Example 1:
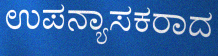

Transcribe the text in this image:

ಉಪನ್ಯಾಸಕರಾದ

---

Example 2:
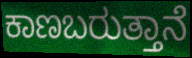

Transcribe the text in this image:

ಕಾಣಬರುತ್ತಾನೆ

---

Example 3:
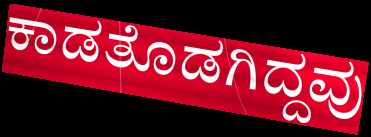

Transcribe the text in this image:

ಕಾಡತೊಡಗಿದ್ದವು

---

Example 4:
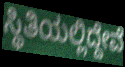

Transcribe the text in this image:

ಸ್ಥಿತಿಯಲ್ಲಿದ್ದೇವೆ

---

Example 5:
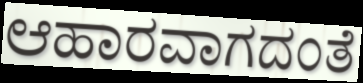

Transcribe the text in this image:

ಆಹಾರವಾಗದಂತೆ